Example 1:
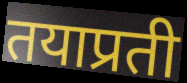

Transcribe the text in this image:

तयाप्रती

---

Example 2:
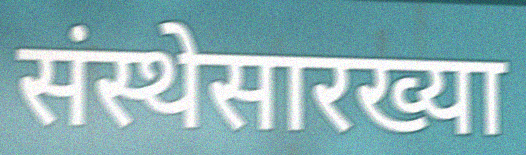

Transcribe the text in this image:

संस्थेसारख्या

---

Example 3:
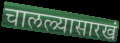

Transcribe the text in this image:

चालल्यासारखं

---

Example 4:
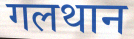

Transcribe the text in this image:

गलथान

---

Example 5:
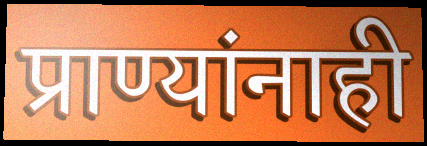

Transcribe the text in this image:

प्राण्यांनाही